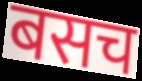
बसच